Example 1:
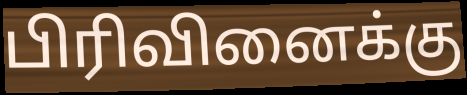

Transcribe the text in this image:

பிரிவினைக்கு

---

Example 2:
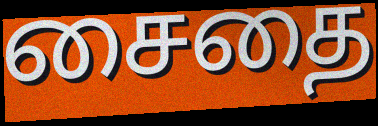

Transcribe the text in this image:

சைதை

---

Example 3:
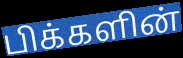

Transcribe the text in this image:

பிக்களின்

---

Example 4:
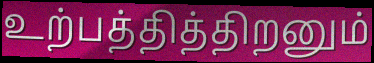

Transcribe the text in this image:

உற்பத்தித்திறனும்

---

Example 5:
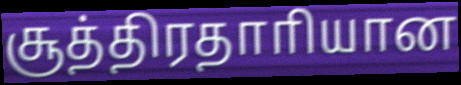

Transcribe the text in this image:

சூத்திரதாரியான